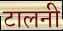
टालनी